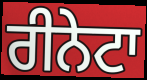
ਰੀਨੇਟਾ